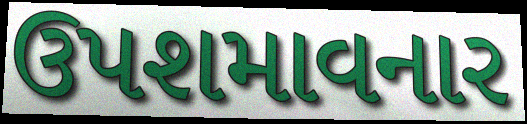
ઉપશમાવનાર